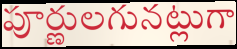
పూర్ణులగునట్లుగా